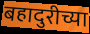
बहादुरीच्या